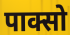
पाक्सो